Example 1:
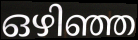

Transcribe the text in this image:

ഒഴിഞ്ഞ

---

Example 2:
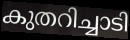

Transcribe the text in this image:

കുതറിച്ചാടി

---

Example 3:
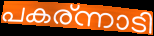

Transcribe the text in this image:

പകര്ന്നാടി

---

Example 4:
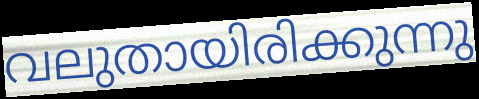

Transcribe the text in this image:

വലുതായിരിക്കുന്നു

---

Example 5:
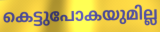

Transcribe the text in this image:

കെട്ടുപോകയുമില്ല